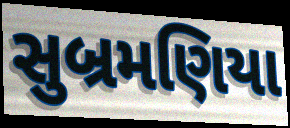
સુબ્રમણિયા